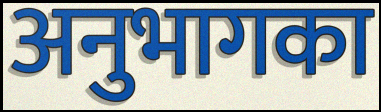
अनुभागका